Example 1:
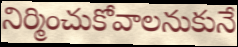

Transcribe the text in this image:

నిర్మించుకోవాలనుకునే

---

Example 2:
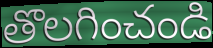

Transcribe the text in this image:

తొలగించండి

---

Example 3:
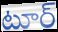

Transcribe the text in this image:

టూర్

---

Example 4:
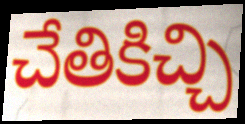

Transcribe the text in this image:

చేతికిచ్చి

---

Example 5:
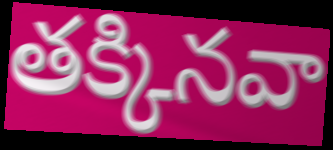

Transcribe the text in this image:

తక్కినవా